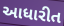
આધારીત